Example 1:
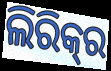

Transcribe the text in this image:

ଲିରିକ୍‍ର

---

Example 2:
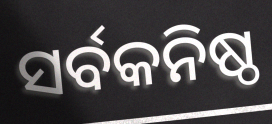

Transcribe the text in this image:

ସର୍ବକନିଷ୍ଠ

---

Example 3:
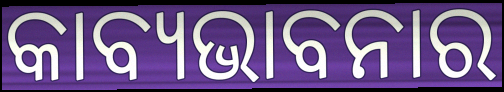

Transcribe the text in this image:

କାବ୍ୟଭାବନାର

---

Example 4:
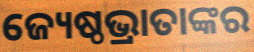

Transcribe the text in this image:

ଜ୍ୟେଷ୍ଠଭ୍ରାତାଙ୍କର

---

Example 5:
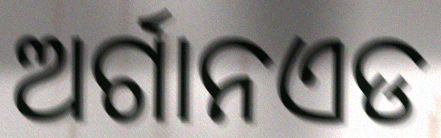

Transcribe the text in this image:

ଅର୍ଗାନଏଡ